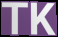
TK